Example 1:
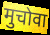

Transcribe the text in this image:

मुचोवा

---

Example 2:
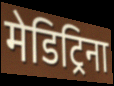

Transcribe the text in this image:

मेडिट्रिना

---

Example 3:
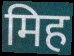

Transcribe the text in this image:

मिह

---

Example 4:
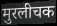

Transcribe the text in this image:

मुरलीचक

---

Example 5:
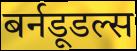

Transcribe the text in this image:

बर्नडूडल्स